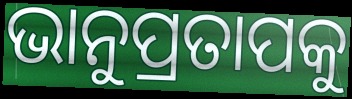
ଭାନୁପ୍ରତାପକୁ